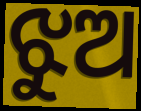
ଝୁଅ